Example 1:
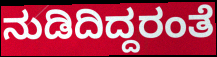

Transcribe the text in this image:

ನುಡಿದಿದ್ದರಂತೆ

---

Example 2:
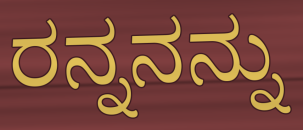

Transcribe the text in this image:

ರನ್ನನನ್ನು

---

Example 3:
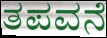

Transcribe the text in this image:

ತಪವನೆ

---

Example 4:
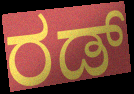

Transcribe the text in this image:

ರಡ್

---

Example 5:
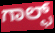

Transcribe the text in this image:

ಗಾಲ್ಫ್